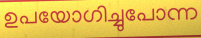
ഉപയോഗിച്ചുപോന്ന